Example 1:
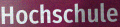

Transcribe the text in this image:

Hochschule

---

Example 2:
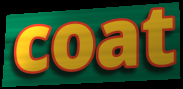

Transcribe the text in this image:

coat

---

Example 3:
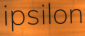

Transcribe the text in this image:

ipsilon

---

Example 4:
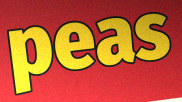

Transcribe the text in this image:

peas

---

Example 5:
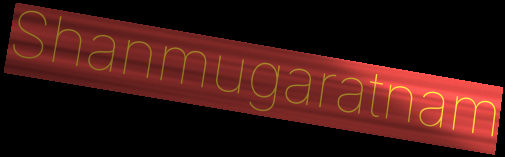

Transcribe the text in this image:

Shanmugaratnam